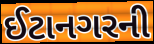
ઈટાનગરની